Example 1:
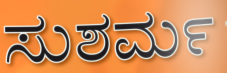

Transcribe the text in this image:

ಸುಶರ್ಮ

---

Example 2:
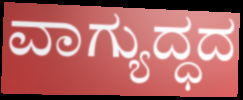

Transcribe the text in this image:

ವಾಗ್ಯುದ್ಧದ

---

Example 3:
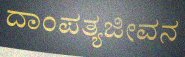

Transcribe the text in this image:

ದಾಂಪತ್ಯಜೀವನ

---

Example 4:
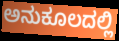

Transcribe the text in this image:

ಅನುಕೂಲದಲ್ಲಿ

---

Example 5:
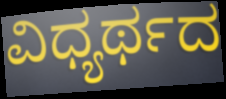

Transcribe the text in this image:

ವಿಧ್ಯರ್ಥದ